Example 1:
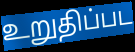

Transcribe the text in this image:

உறுதிப்பட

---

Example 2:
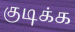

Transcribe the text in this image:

குடிக்க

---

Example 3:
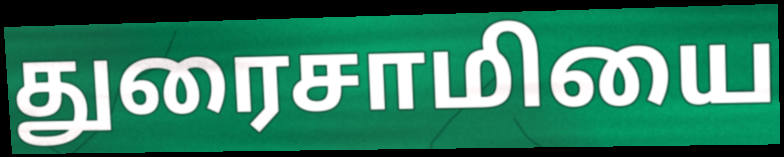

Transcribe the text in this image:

துரைசாமியை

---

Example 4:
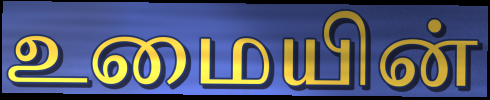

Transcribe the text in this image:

உமையின்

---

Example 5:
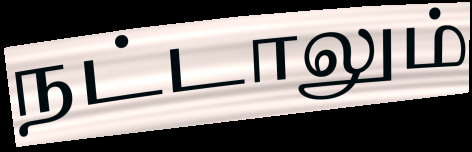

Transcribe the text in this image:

நட்டாலும்